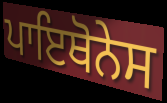
ਪਾਇਥੋਨੇਸ